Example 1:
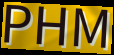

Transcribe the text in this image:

PHM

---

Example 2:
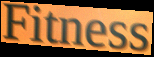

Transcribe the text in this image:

Fitness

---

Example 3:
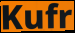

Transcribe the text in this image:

Kufr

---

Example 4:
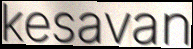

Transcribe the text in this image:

kesavan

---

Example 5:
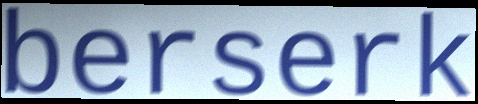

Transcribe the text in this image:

berserk